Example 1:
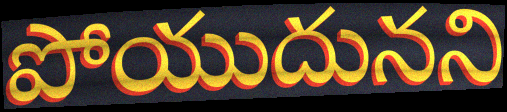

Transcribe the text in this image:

పోయుదునని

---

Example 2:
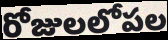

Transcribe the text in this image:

రోజులలోపల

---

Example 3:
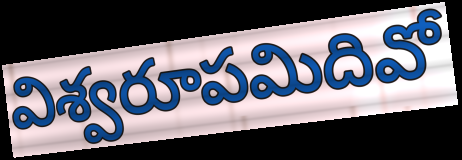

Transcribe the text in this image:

విశ్వరూపమిదివో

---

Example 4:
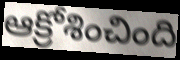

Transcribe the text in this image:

ఆక్రోశించింది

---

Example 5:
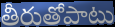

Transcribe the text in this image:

తీరుతోపాటు